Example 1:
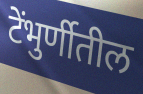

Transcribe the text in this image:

टेंभुर्णीतील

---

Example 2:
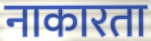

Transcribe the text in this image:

नाकारता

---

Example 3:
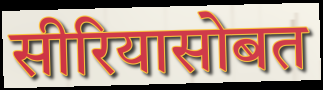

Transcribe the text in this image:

सीरियासोबत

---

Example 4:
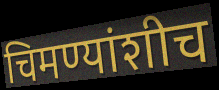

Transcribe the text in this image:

चिमण्यांशीच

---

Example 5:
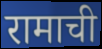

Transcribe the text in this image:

रामाची